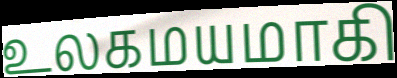
உலகமயமாகி